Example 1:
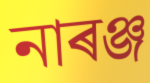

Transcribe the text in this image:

নাৰঞ্জ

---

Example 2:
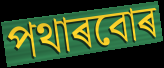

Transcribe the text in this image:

পথাৰবোৰ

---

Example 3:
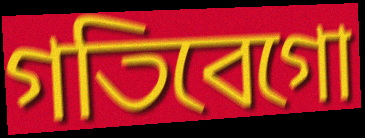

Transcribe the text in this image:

গতিবেগো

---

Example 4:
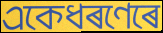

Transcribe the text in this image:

একেধৰণেৰে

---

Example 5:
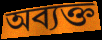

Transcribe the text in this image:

অব্যক্ত